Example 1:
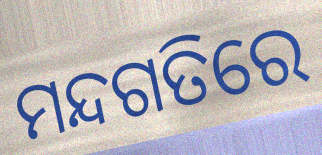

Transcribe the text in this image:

ମନ୍ଦଗତିରେ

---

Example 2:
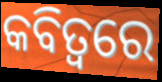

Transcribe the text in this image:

କବିତ୍ୱରେ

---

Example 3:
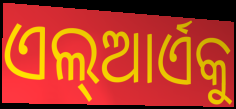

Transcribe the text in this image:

ଏଲ୍ଆର୍ଏକୁ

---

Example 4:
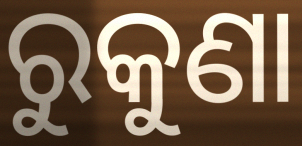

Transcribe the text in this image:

ରୁକୁଣା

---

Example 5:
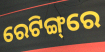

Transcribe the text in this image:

ରେଟିଙ୍ଗ୍‌ରେ